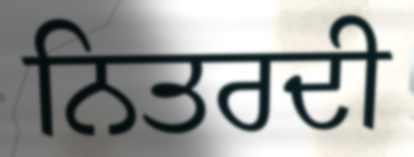
ਨਿਤਰਦੀ